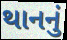
થાનનું